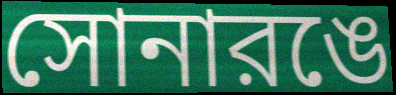
সোনারঙে